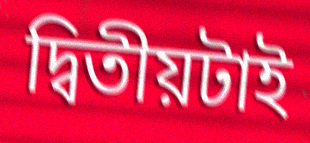
দ্বিতীয়টাই